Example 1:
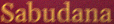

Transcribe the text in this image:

Sabudana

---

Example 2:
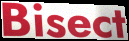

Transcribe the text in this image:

Bisect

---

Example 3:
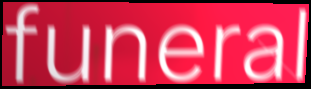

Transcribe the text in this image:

funeral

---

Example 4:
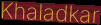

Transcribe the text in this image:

Khaladkar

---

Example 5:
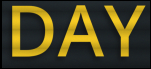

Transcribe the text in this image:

DAY